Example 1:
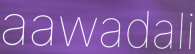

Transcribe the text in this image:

aawadali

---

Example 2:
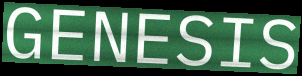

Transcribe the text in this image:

GENESIS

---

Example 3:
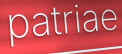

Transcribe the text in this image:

patriae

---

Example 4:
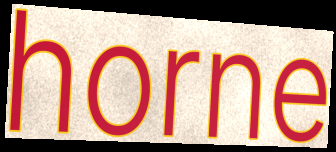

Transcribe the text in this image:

horne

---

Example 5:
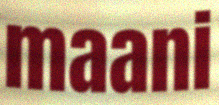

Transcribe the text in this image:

maani